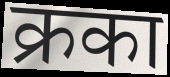
क्रका